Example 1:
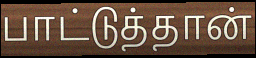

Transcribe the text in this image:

பாட்டுத்தான்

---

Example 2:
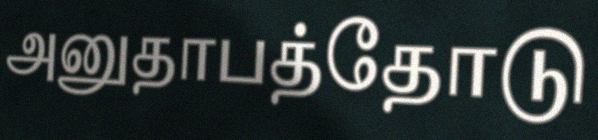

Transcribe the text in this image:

அனுதாபத்தோடு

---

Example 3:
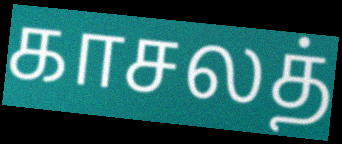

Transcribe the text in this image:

காசலத்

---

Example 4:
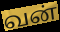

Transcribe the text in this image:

வன்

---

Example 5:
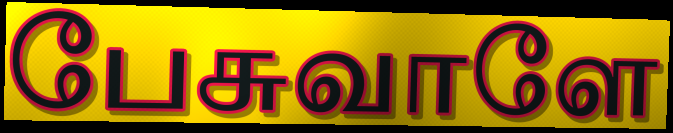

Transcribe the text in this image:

பேசுவாளே